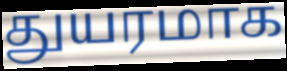
துயரமாக